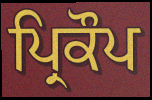
ਪ੍ਰਿਕੌਪ